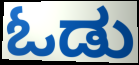
ಓಡು